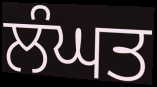
ਲੰਘਤ